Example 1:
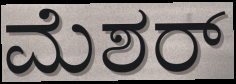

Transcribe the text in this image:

ಮೆಶರ್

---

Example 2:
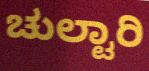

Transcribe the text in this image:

ಚುಲ್ಟಾರಿ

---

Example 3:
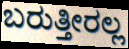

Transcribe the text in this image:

ಬರುತ್ತೀರಲ್ಲ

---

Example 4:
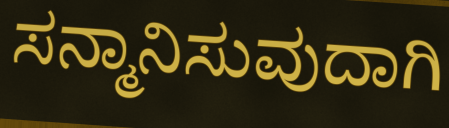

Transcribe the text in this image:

ಸನ್ಮಾನಿಸುವುದಾಗಿ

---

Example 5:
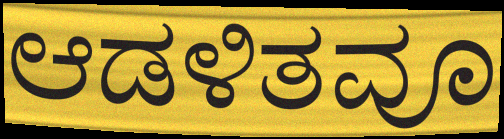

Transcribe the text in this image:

ಆಡಳಿತವೂ